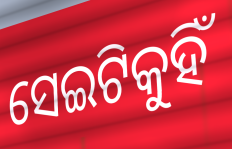
ସେଇଟିକୁହିଁ